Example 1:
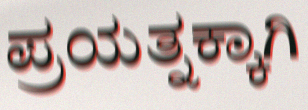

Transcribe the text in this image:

ಪ್ರಯತ್ನಕ್ಕಾಗಿ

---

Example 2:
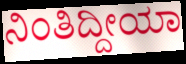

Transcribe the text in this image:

ನಿಂತಿದ್ದೀಯಾ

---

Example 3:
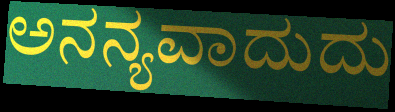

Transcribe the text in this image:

ಅನನ್ಯವಾದುದು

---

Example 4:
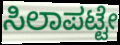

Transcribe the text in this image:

ಸಿಲಾಪಟ್ಟೇ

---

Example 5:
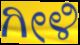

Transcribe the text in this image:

ಗೀಳಿ